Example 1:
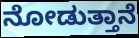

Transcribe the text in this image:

ನೋಡುತ್ತಾನೆ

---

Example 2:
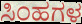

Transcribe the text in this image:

ಸಿಂಹಗಳ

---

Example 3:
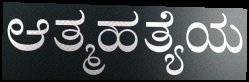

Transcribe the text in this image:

ಆತ್ಮಹತ್ಯೆಯ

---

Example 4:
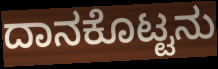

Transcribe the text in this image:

ದಾನಕೊಟ್ಟನು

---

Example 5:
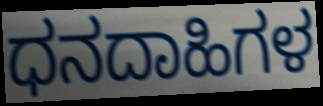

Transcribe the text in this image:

ಧನದಾಹಿಗಳ